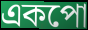
একপো